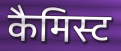
कैमिस्ट